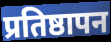
प्रतिष्ठापन